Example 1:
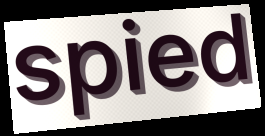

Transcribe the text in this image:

spied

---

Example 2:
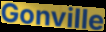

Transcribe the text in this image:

Gonville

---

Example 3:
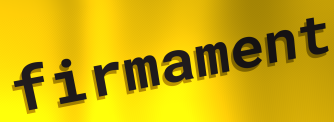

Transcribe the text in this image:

firmament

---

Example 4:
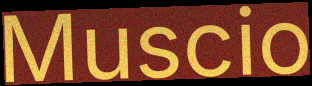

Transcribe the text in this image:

Muscio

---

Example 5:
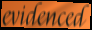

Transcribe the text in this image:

evidenced